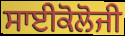
ਸਾਈਕੋਲੋਜੀ